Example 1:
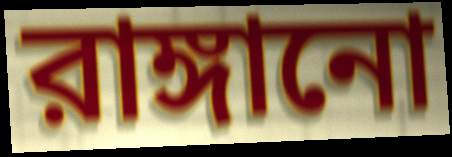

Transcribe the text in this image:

রাঙ্গানো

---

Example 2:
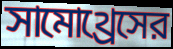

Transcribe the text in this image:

সামোথ্রেসের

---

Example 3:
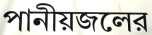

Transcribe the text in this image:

পানীয়জলের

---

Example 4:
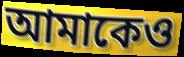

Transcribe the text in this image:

আমাকেও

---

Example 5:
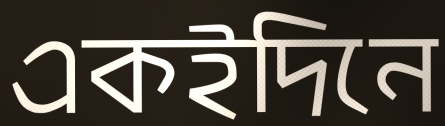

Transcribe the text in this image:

একইদিনে